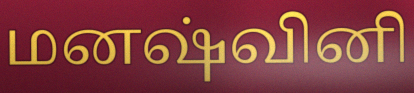
மனஷ்வினி